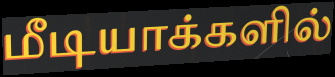
மீடியாக்களில்